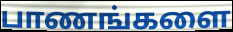
பாணங்களை